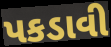
પકડાવી